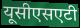
यूसीएसएटी